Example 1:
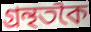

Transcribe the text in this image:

গ্ৰন্থতকৈ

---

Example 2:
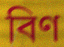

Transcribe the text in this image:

বিণ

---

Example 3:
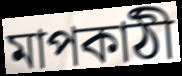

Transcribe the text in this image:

মাপকাঠী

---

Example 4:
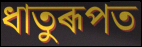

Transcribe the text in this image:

ধাতুৰূপত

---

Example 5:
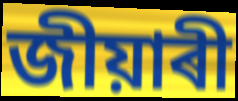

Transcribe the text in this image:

জীয়াৰী